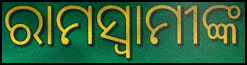
ରାମସ୍ୱାମୀଙ୍କ